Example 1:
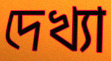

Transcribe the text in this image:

দেখ্যা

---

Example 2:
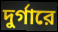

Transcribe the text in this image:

দুর্গারে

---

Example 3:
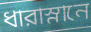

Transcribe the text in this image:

ধারাস্নানে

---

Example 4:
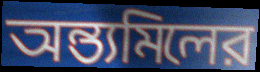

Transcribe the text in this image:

অন্ত্যমিলের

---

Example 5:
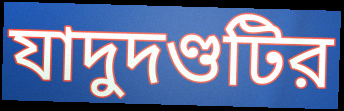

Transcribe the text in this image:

যাদুদণ্ডটির